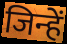
जिन्‍हें